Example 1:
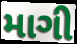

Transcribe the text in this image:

માગી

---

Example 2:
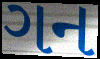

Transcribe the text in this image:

ગન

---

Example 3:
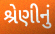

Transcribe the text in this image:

શ્રેણીનું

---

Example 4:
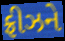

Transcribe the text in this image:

ફ્રીઝને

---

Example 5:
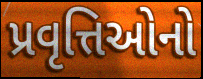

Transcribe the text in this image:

પ્રવૃત્તિઓનો